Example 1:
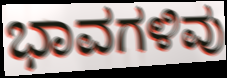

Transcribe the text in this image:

ಭಾವಗಳಿವು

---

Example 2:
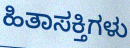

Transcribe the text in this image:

ಹಿತಾಸಕ್ತಿಗಳು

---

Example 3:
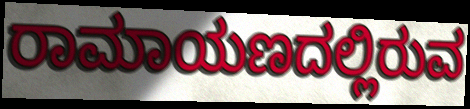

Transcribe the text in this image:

ರಾಮಾಯಣದಲ್ಲಿರುವ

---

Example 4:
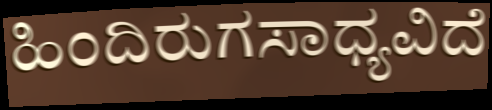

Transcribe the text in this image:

ಹಿಂದಿರುಗಸಾಧ್ಯವಿದೆ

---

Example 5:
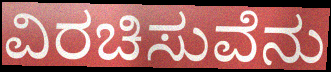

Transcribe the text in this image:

ವಿರಚಿಸುವೆನು